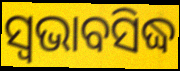
ସ୍ଵଭାବସିଦ୍ଧ